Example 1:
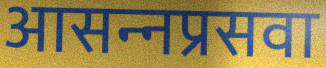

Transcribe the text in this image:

आसन्नप्रसवा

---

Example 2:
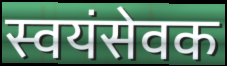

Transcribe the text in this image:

स्वयंसेवक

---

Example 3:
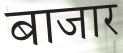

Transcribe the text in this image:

बाजार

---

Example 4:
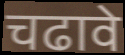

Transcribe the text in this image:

चढावे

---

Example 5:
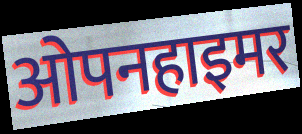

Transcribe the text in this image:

ओपनहाइमर